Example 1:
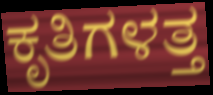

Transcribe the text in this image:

ಕೃತಿಗಳತ್ತ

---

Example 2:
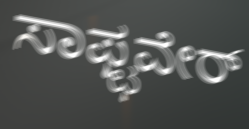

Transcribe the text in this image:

ಸಾಫ್ಟವೇರ್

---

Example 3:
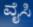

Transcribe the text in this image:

ವೈಸಿ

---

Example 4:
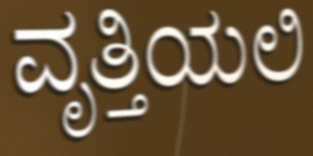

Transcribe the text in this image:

ವೃತ್ತಿಯಲಿ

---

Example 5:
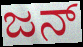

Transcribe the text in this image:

ಜನ್